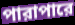
পারাপারে